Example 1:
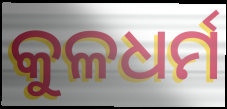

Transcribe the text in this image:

କୁଳଧର୍ମ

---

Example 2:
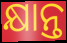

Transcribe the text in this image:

କ୍ଷାନ୍ତ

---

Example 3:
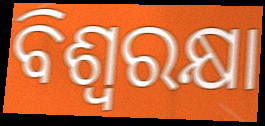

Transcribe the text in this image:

ବିଶ୍ୱରକ୍ଷା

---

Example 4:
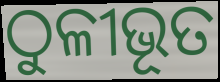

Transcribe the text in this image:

ଠୁଳୀଭୂତ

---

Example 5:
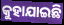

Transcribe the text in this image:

କୁହାଯାଇଛି